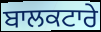
ਬਾਲਕਟਾਰੇ